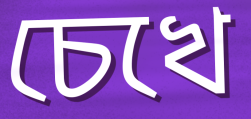
চেখে